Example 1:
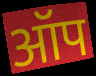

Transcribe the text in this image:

ऑप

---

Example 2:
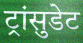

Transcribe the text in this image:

ट्रांसुडेट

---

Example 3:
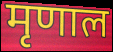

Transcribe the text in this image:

मृणाल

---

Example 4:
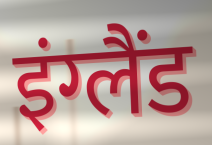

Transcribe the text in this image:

इंग्‍लैंड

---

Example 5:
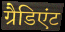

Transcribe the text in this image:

ग्रैडिएंट